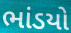
ભાંડયો